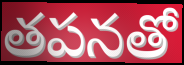
తపనతో